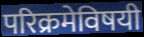
परिक्रमेविषयी